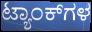
ಟ್ಯಾಂಕ್‌ಗಳ